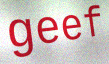
geef